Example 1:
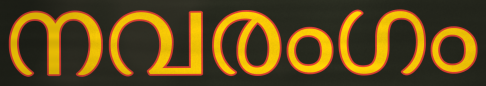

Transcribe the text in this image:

നവരംഗം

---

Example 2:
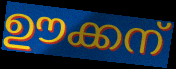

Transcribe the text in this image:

ഊക്കന്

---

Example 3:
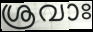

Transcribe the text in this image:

ശ്രവാഃ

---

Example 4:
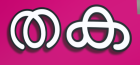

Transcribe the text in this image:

തക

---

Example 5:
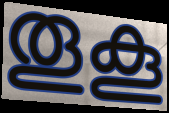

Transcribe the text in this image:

തൂകൂ